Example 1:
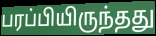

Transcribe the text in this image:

பரப்பியிருந்தது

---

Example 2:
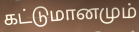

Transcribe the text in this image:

கட்டுமானமும்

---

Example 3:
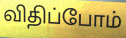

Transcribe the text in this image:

விதிப்போம்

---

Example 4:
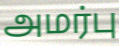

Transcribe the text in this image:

அமர்பு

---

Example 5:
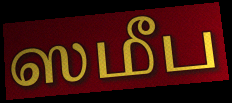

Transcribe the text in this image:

ஸமீப